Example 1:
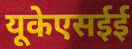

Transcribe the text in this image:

यूकेएसईई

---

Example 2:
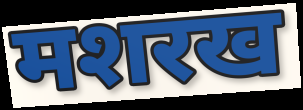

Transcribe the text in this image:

मशरख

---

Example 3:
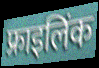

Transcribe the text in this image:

फ्राइलिंक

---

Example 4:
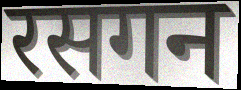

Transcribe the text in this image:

रसगन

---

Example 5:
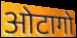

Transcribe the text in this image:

ओटागो